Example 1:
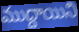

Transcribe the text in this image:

ముద్దాయిని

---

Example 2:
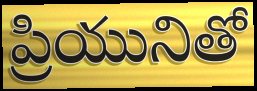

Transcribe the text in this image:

ప్రియునితో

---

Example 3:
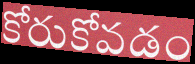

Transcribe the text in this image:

కోరుకోవడం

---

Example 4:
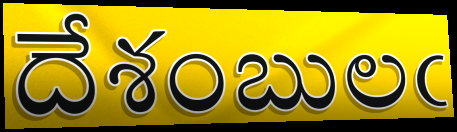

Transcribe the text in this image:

దేశంబులఁ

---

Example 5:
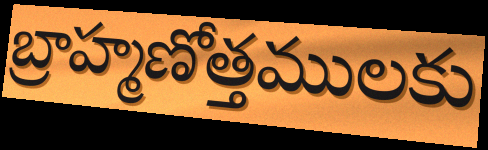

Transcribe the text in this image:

బ్రాహ్మణోత్తములకు